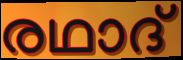
രഥാദ്